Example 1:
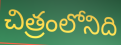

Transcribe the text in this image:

చిత్రంలోనిది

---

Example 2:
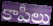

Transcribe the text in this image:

కాపీలు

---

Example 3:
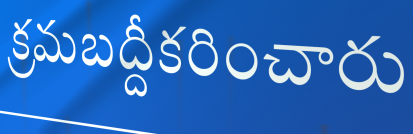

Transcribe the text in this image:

క్రమబద్దీకరించారు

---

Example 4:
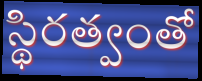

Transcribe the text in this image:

స్థిరత్వంతో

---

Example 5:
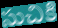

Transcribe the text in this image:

సుచికి